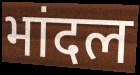
भांदल